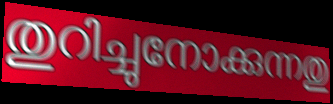
തുറിച്ചുനോക്കുന്നതു